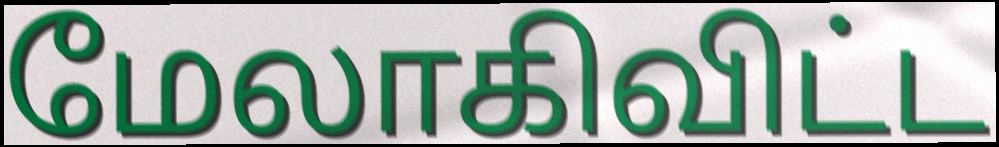
மேலாகிவிட்ட